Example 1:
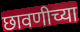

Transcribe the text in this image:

छावणीच्या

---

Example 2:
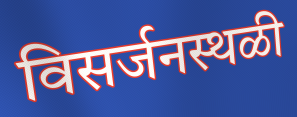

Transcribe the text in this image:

विसर्जनस्थळी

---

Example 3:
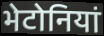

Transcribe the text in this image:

भेटोनियां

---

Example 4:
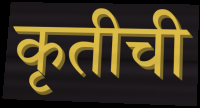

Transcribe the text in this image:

कृतीची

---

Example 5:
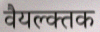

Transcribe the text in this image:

वैयल्क्तक